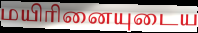
மயிரினையுடைய